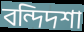
বন্দিদশা